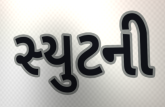
સ્યુટની